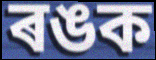
ৰঙক